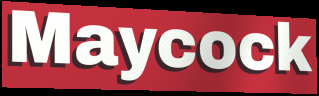
Maycock